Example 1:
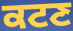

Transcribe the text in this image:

ਕਟਣ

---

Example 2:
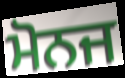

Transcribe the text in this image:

ਮੋਨਜ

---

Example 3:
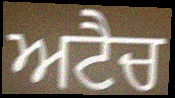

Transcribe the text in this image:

ਅਟੈਚ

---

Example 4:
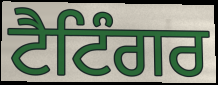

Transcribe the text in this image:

ਟੈਟਿੰਗਰ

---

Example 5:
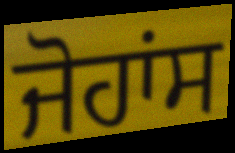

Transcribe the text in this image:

ਜੋਹਾਂਸ